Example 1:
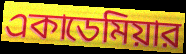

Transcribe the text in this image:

একাডেমিয়ার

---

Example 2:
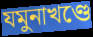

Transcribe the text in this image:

যমুনাখণ্ডে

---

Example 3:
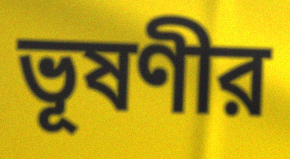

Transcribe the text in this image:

ভূষণীর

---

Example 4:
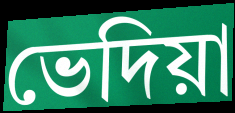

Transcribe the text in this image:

ভেদিয়া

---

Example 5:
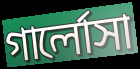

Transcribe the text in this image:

গার্লোসা